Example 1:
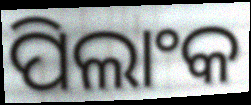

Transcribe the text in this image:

ପିଲାଂକ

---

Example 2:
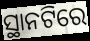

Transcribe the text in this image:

ସ୍ଥାନଟିରେ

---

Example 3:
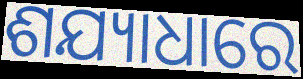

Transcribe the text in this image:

ଶଯ୍ୟାଧାରେ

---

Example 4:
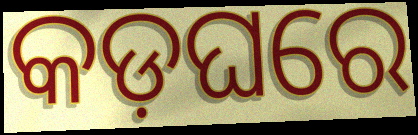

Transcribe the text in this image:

କଡ଼ଘରେ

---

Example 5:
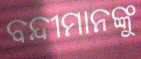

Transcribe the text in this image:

ବନ୍ଦୀମାନଙ୍କୁ